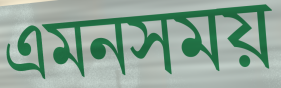
এমনসময়